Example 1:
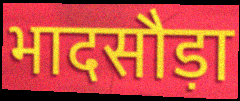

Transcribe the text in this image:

भादसौड़ा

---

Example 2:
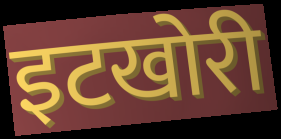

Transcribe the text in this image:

इटखोरी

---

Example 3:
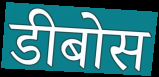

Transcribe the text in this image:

डीबोस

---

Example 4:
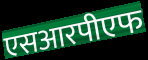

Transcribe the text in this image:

एसआरपीएफ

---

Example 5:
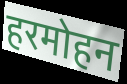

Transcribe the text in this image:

हरमोहन